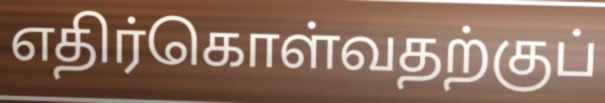
எதிர்கொள்வதற்குப்